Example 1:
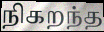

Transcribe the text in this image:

நிகறந்த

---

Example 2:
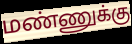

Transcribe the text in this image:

மண்ணுக்கு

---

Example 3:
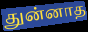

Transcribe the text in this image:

துன்னாத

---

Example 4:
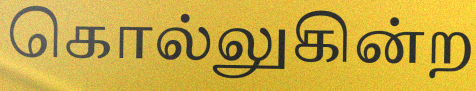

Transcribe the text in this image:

கொல்லுகின்ற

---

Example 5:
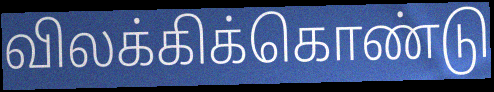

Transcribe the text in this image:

விலக்கிக்கொண்டு